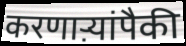
करणाऱ्‍यांपैकी